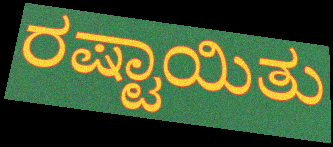
ರಷ್ಟಾಯಿತು